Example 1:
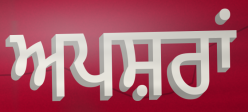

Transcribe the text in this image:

ਅਪਸ਼ਰਾਂ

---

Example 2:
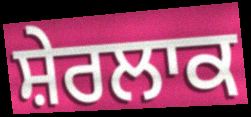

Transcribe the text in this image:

ਸ਼ੇਰਲਾਕ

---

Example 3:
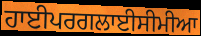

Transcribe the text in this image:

ਹਾਈਪਰਗਲਾਈਸੀਮੀਆ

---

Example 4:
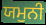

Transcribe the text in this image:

ਯਮੁਨੀ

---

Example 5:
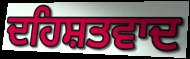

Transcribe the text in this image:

ਦਹਿਸ਼ਤਵਾਦ